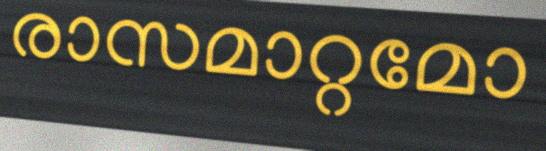
രാസമാറ്റമോ